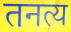
तनत्य